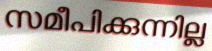
സമീപിക്കുന്നില്ല